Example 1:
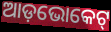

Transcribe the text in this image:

ଆଡ଼ଭୋକେଟ୍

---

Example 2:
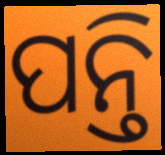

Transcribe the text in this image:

ପନ୍ତି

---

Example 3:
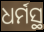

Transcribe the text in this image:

ଧର୍ମସ୍ଥ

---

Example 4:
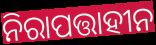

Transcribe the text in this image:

ନିରାପତ୍ତାହୀନ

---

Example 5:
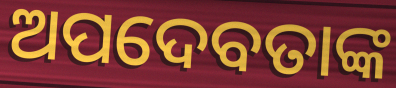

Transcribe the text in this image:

ଅପଦେବତାଙ୍କ